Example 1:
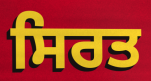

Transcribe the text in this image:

ਸਿਰਤ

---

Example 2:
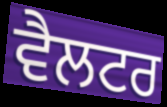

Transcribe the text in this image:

ਵੈਲਟਰ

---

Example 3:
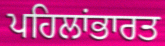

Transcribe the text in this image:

ਪਹਿਲਾਂਭਾਰਤ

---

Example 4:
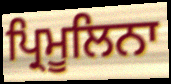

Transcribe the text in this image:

ਪ੍ਰਿਮੂਲਿਨਾ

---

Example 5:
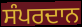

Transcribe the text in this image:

ਸੰਪਰਦਾਨ